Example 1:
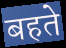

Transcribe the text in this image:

बहते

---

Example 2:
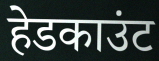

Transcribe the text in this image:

हेडकाउंट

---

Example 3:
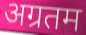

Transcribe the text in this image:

अग्रतम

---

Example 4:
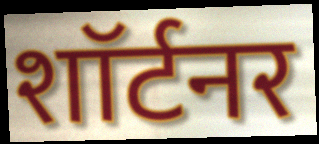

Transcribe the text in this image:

शॉर्टनर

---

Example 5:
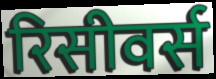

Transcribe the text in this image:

रिसीवर्स